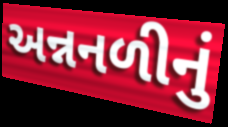
અન્નનળીનું